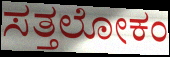
ಸತ್ತಲೋಕಂ